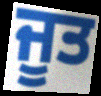
ਜੂਤ